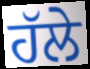
ਹੱਲੇ